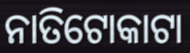
ନାତିଟୋକାଟା